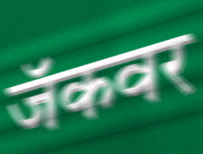
जॅकवर